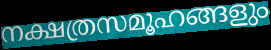
നക്ഷത്രസമൂഹങ്ങളും